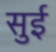
सुई